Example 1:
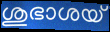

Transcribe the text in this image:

ശുഭാശയ്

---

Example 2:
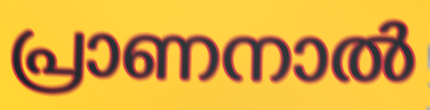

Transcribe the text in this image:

പ്രാണനാൽ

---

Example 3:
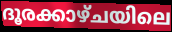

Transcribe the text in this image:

ദൂരക്കാഴ്ചയിലെ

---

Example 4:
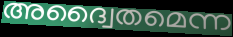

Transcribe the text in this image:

അദ്വൈതമെന്ന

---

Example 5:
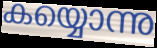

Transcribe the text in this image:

കയ്യൊന്നു